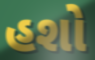
હશો